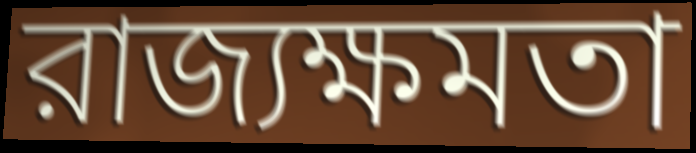
রাজ্যক্ষমতা